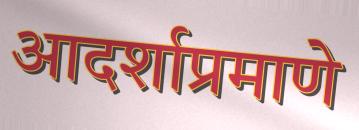
आदर्शाप्रमाणे